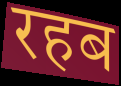
रहब